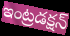
ఇంట్రడక్షన్